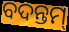
ବଦନ୍ତମ୍